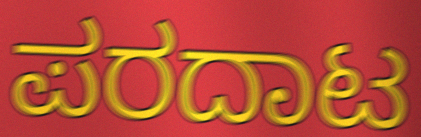
ಪರದಾಟ